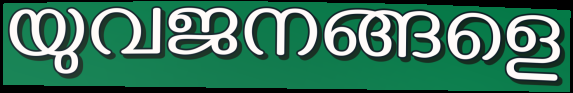
യുവജനങ്ങളെ